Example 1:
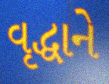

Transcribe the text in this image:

વૃદ્ધાને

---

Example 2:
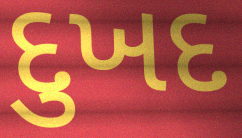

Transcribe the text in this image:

દુખદ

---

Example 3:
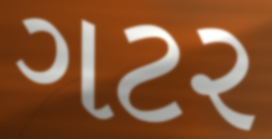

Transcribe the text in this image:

ગટર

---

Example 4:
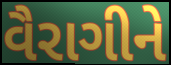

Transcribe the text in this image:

વૈરાગીને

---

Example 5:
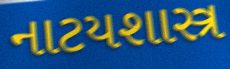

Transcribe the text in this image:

નાટયશાસ્ત્ર